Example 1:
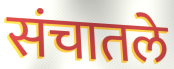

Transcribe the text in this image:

संचातले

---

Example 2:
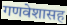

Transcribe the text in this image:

गणवेशासह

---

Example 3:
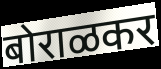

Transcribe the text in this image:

बोराळकर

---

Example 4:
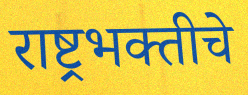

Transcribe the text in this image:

राष्ट्रभक्तीचे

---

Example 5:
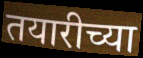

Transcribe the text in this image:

तयारीच्या